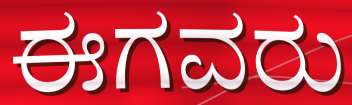
ಈಗವರು